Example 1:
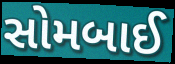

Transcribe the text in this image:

સોમબાઈ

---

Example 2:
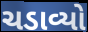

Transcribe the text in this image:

ચડાવ્યો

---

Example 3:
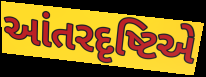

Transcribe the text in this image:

આંતરદૃષ્ટિએ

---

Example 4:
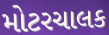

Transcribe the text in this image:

મોટરચાલક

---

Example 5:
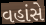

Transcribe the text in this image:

વહાંસે